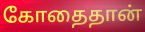
கோதைதான்